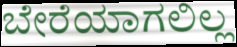
ಬೇರೆಯಾಗಲಿಲ್ಲ